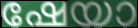
ഷേയാ